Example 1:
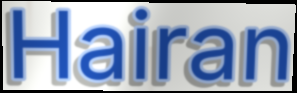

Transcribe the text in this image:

Hairan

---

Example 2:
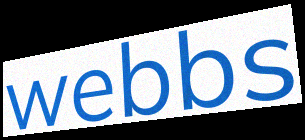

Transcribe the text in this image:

webbs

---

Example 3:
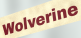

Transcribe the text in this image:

Wolverine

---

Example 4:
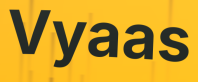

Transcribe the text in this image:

Vyaas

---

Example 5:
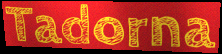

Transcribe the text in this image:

Tadorna